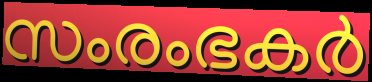
സംരംഭകർ